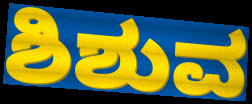
ಶಿಶುವ